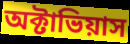
অক্টাভিয়াস